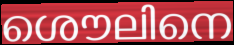
ശൌലിനെ